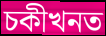
চকীখনত